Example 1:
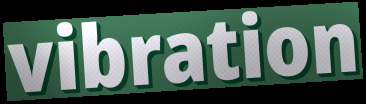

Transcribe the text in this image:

vibration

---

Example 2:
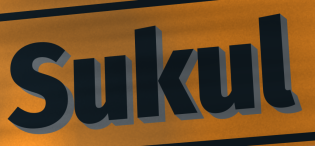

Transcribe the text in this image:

Sukul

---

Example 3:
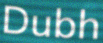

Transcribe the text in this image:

Dubh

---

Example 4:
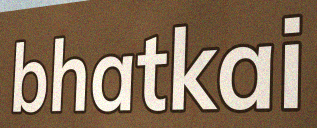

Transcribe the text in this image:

bhatkai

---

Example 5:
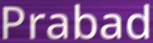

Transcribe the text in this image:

Prabad